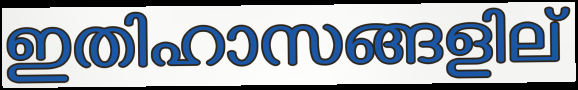
ഇതിഹാസങ്ങളില്